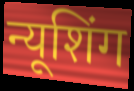
न्यूशिंग